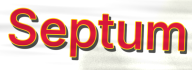
Septum